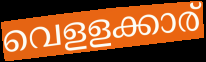
വെളളക്കാര്